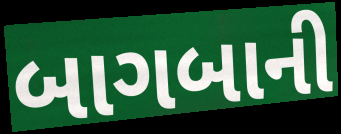
બાગબાની